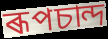
ৰূপচান্দ